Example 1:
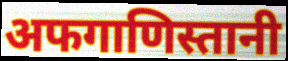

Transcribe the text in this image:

अफगाणिस्तानी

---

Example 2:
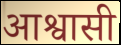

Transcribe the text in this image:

आश्वासी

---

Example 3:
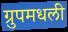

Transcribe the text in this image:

ग्रुपमधली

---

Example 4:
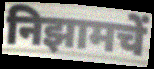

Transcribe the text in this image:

निझामचें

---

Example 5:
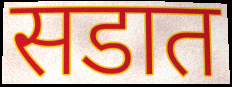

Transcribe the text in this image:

सडात